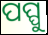
ପପ୍ପୁ